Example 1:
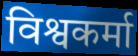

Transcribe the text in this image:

विश्वकर्मा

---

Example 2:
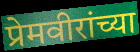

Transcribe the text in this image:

प्रेमवीरांच्या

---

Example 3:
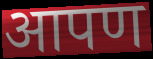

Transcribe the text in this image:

आपण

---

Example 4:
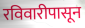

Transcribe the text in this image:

रविवारीपासून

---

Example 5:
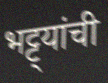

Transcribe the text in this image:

भट्ट्यांची